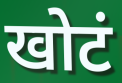
खोटं